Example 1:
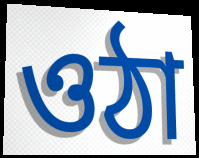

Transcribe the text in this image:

ওঠা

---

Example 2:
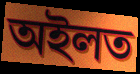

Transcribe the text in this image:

অইলত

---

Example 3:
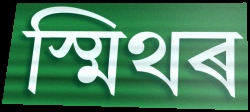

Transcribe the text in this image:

স্মিথৰ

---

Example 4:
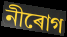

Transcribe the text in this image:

নীৰোগ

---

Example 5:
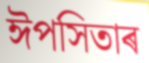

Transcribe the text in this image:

ঈপসিতাৰ